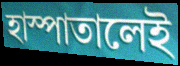
হাস্পাতালেই